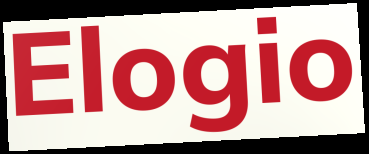
Elogio